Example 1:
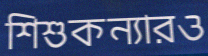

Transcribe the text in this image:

শিশুকন্যারও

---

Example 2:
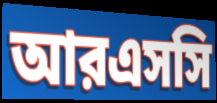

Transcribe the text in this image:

আরএসসি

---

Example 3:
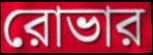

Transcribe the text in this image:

রোভার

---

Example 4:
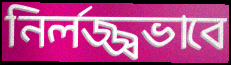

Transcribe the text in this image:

নির্লজ্জ্বভাবে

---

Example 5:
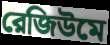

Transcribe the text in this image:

রেজিউমে